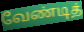
வேண்டித்